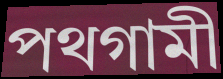
পথগামী